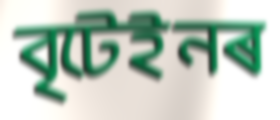
বৃটেইনৰ